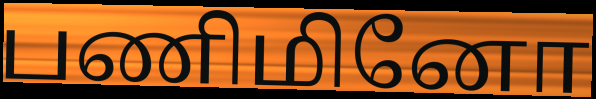
பணிமினோ